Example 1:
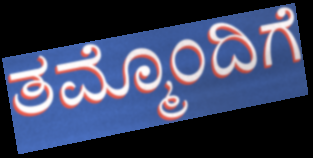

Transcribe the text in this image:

ತಮ್ಮೊಂದಿಗೆ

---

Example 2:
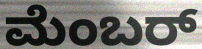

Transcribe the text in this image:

ಮೆಂಬರ್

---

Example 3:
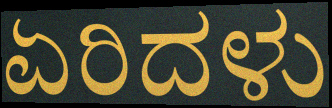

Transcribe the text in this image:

ಏರಿದಳು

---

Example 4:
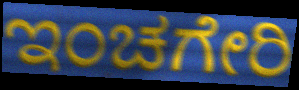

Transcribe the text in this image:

ಇಂಚಗೇರಿ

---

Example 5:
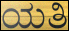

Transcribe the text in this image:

ಯತಿ